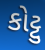
કોટ્ટુ